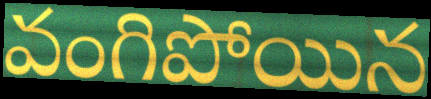
వంగిపోయిన